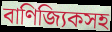
বাণিজ্যিকসহ